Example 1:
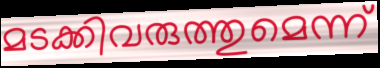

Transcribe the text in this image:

മടക്കിവരുത്തുമെന്ന്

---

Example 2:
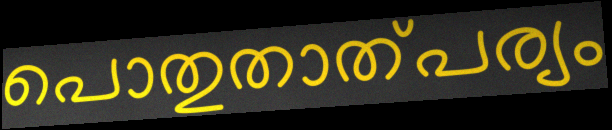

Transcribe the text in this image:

പൊതുതാത്പര്യം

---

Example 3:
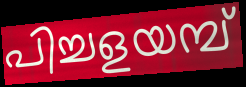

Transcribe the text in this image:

പിച്ചളയമ്പ്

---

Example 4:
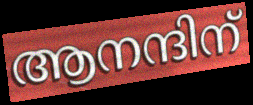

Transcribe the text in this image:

ആനന്ദിന്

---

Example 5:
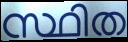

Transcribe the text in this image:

സ്ഥിത